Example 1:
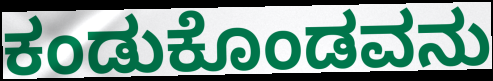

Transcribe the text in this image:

ಕಂಡುಕೊಂಡವನು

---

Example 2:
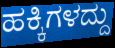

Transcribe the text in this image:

ಹಕ್ಕಿಗಳದ್ದು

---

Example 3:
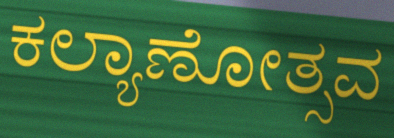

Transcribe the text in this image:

ಕಲ್ಯಾಣೋತ್ಸವ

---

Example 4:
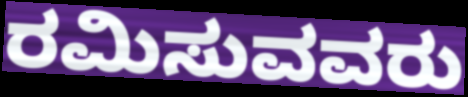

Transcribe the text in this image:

ರಮಿಸುವವರು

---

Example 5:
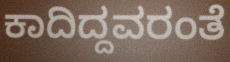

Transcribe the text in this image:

ಕಾದಿದ್ದವರಂತೆ